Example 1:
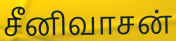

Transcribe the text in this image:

சீனிவாசன்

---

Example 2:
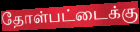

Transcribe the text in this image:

தோள்பட்டைக்கு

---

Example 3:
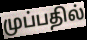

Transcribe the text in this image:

முப்பதில்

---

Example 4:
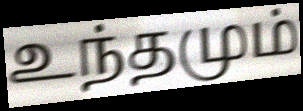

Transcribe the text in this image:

உந்தமும்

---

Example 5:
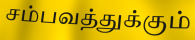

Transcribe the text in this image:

சம்பவத்துக்கும்